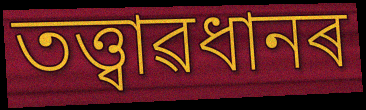
তত্ত্বাৱধানৰ